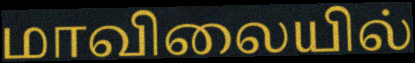
மாவிலையில்